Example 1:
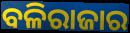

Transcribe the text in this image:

ବଳିରାଜାର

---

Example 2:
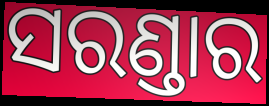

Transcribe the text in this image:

ସରଣ୍ଡାର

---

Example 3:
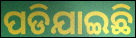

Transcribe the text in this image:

ପଡିଯାଇଛି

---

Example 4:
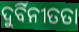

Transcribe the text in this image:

ଦୁର୍ବିନୀତତା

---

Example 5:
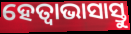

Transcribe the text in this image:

ହେତ୍ଵାଭାସାସ୍ତୁ